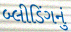
બ્લીડિંગનું